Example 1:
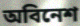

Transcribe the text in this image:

অবিনেশ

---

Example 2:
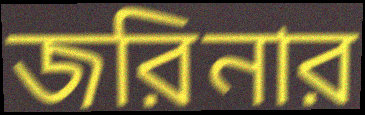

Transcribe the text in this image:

জরিনার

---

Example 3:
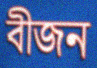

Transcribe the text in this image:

বীজন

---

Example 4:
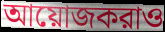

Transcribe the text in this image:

আয়োজকরাও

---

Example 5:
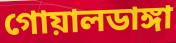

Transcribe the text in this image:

গোয়ালডাঙ্গা